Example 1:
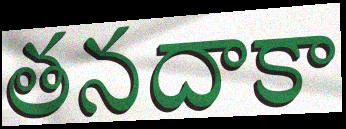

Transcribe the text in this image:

తనదాకా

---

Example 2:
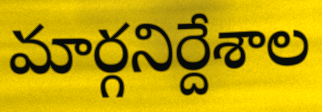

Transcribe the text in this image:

మార్గనిర్దేశాల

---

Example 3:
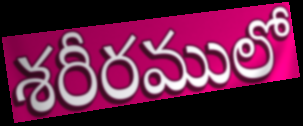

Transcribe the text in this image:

శరీరములో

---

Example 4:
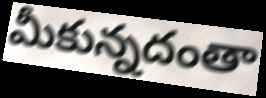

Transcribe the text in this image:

మీకున్నదంతా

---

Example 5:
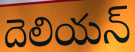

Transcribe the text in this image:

దెలియన్